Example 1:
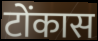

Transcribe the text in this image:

टोंकास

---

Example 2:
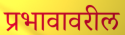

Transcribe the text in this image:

प्रभावावरील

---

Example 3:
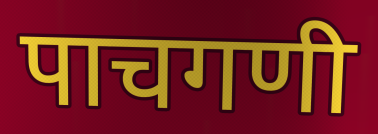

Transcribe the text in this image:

पाचगणी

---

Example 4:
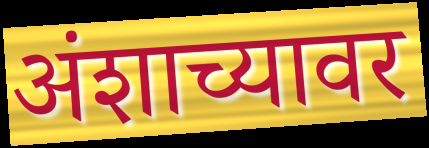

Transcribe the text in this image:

अंशाच्यावर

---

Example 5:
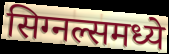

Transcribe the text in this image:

सिग्नल्समध्ये